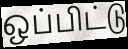
ஒப்பிட்டு